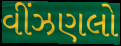
વીંઝણલો